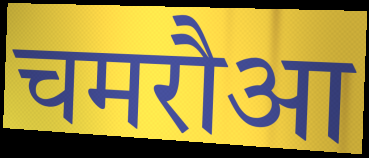
चमरौआ